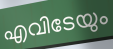
എവിടേയും